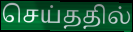
செய்ததில்